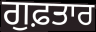
ਗੁਫ਼ਤਾਰ